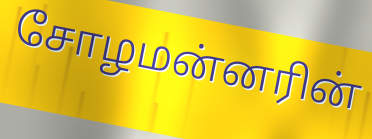
சோழமன்னரின்